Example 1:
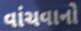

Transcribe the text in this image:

વાંચવાનો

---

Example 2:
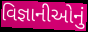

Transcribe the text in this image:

વિજ્ઞાનીઓનું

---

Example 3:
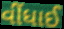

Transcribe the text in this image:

વીંધાઈ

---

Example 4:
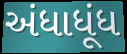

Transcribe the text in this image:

અંધાધૂંધ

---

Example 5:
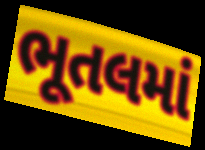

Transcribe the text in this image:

ભૂતલમાં